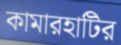
কামারহাটির